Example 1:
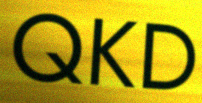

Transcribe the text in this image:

QKD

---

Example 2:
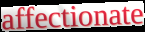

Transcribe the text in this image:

affectionate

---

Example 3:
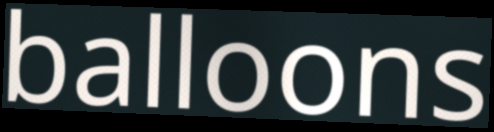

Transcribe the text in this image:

balloons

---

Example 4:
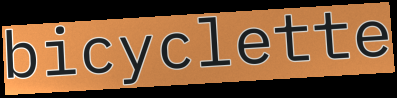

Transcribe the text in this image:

bicyclette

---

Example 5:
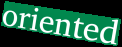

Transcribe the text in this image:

oriented